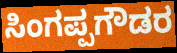
ಸಿಂಗಪ್ಪಗೌಡರ